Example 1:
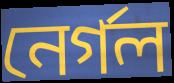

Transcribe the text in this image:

নের্গল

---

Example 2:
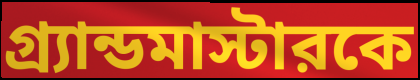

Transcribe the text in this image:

গ্র্যান্ডমাস্টারকে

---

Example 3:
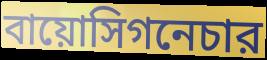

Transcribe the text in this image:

বায়োসিগনেচার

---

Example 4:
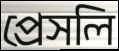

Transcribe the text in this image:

প্রেসলি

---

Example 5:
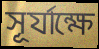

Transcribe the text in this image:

সূর্যাক্ষে